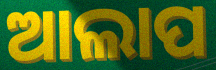
ଆଲାପ